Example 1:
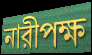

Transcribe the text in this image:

নারীপক্ষ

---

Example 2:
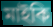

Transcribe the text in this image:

মাইকি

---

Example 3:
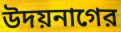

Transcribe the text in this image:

উদয়নাগের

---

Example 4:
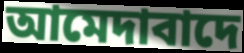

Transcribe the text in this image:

আমেদাবাদে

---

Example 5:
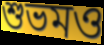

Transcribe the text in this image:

শুভমও